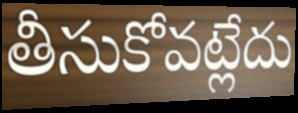
తీసుకోవట్లేదు